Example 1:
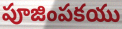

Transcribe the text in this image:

పూజింపకయు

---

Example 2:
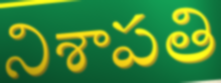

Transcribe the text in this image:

నిశాపతి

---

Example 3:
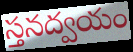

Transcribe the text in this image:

స్తనద్వయం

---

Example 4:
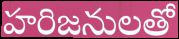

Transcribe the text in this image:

హరిజనులతో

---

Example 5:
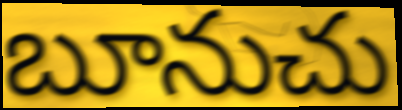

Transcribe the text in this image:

బూనుచు